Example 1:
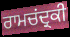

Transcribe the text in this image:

ਰਾਮਚਂਦ੍ਰਕੀ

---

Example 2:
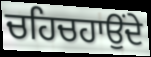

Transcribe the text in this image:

ਚਹਿਚਹਾਉਂਦੇ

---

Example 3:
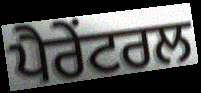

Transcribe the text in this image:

ਪੈਰੇਂਟਰਲ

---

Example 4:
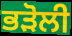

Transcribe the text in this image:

ਭੜੋਲੀ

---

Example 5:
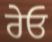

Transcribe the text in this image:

ਰੇਓ